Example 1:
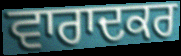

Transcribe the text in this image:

ਵਾਰਾਦਕਰ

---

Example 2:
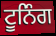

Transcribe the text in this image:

ਟੂਨਿੰਗ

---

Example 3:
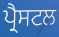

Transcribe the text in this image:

ਪ੍ਰੈਸਟਲ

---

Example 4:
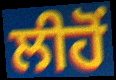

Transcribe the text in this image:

ਲੀਹੋਂ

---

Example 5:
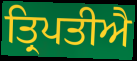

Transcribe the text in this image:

ਤ੍ਰਿਪਤੀਐ